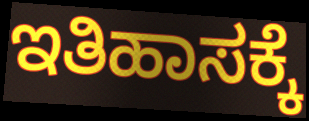
ಇತಿಹಾಸಕ್ಕೆ